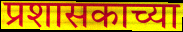
प्रशासकाच्या